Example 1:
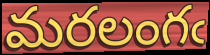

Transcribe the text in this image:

మరలంగఁ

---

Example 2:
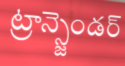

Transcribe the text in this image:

ట్రాన్స్జెండర్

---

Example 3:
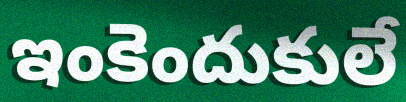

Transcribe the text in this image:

ఇంకెందుకులే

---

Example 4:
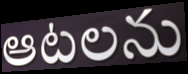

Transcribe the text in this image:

ఆటలను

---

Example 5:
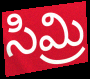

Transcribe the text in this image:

సిమ్రి